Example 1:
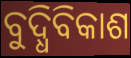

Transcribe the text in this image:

ବୁଦ୍ଧିବିକାଶ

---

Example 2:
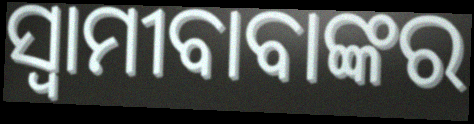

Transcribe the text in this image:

ସ୍ଵାମୀବାବାଙ୍କର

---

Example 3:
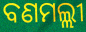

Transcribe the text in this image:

ବଣମଲ୍ଲୀ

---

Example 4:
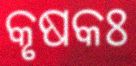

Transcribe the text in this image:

କୃଷକଃ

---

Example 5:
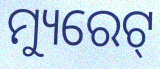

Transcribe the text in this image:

ମ୍ୟୁରେଟ୍